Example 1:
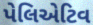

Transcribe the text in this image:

પેલિએટિવ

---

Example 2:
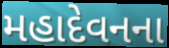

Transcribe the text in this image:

મહાદેવનના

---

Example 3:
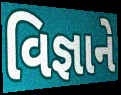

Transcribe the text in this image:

વિજ્ઞાને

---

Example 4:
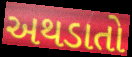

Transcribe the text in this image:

અથડાતો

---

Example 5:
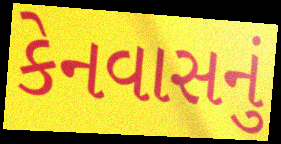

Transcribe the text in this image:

કેનવાસનું